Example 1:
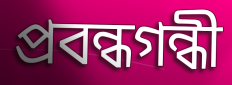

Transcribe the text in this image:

প্রবন্ধগন্ধী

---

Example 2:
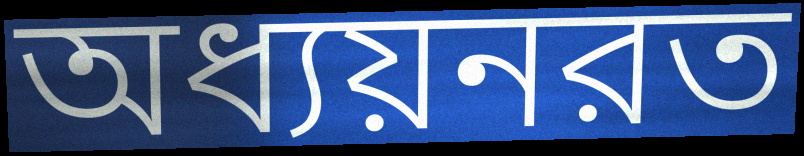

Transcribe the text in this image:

অধ্যয়নরত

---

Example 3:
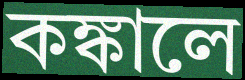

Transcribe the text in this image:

কঙ্কালে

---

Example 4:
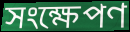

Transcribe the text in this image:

সংক্ষেপণ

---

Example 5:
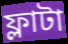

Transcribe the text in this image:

ফ্লাটা